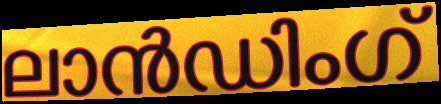
ലാൻഡിംഗ്